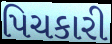
પિચકારી